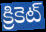
క్రికెట్